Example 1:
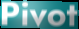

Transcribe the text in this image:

Pivot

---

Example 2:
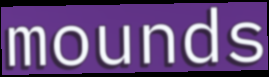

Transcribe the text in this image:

mounds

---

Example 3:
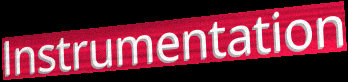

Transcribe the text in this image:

Instrumentation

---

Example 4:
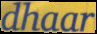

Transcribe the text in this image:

dhaar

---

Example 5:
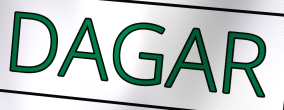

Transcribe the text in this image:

DAGAR